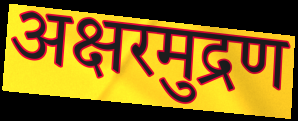
अक्षरमुद्रण